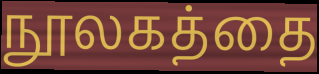
நூலகத்தை